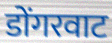
डोंगरवाट